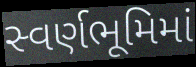
સ્વર્ણભૂમિમાં